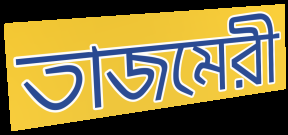
তাজমেরী